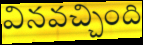
వినవచ్చింది